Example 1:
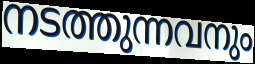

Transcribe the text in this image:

നടത്തുന്നവനും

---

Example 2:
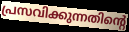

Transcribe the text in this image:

പ്രസവിക്കുന്നതിന്റെ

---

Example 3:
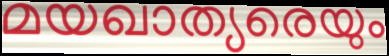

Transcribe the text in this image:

മയഖാത്യരെയും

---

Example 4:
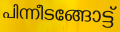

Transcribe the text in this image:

പിന്നീടങ്ങോട്ട്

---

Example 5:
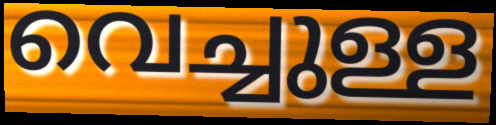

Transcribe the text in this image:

വെച്ചുള്ള